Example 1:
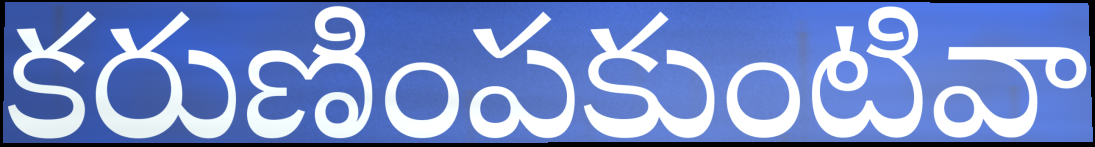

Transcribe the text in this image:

కరుణింపకుంటివా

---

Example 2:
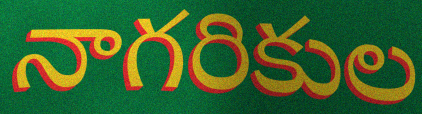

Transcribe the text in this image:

నాగరికుల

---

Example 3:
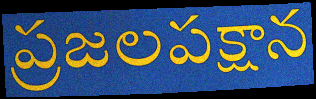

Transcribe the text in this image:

ప్రజలపక్షాన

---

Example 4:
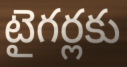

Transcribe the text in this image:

టైగర్లకు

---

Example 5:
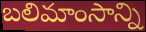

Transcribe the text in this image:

బలిమాంసాన్ని